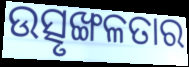
ଉତ୍ସୃଙ୍ଖଳତାର